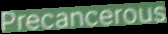
Precancerous